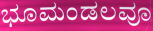
ಭೂಮಂಡಲವೂ